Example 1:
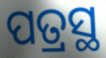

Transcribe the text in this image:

ପତ୍ରସ୍ଥ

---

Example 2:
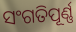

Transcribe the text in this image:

ସଂଗତିପୂର୍ଣ୍ଣ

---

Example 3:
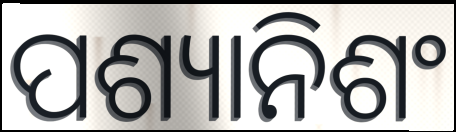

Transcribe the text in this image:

ପଶ୍ୟାନିଶଂ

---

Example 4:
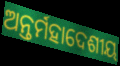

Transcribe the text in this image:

ଅନ୍ତର୍ମହାଦେଶୀୟ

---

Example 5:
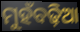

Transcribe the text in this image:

ମୁହଁବଢ଼ିଆ